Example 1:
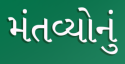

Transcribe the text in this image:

મંતવ્યોનું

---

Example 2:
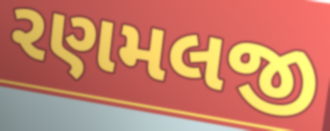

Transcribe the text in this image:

રણમલજી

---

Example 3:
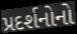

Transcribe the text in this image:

પ્રદર્શનોનો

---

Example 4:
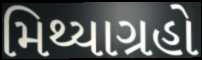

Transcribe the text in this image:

મિથ્યાગ્રહો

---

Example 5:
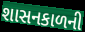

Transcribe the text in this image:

શાસનકાળની